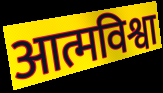
आत्मविश्वा